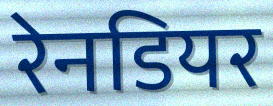
रेनडियर